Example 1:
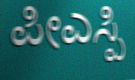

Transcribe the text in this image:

ಪೀಎಸ್ಪಿ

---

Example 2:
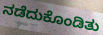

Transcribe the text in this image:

ನಡೆದುಕೊಂಡಿತು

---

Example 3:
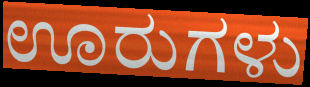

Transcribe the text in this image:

ಊರುಗಳು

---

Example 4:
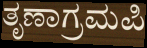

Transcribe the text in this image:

ತೃಣಾಗ್ರಮಪಿ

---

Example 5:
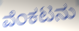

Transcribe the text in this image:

ವೆಂಕಟನು